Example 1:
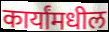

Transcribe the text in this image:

कार्यांमधील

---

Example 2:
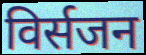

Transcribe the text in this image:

विर्सजन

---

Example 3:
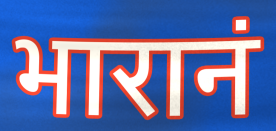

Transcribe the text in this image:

भारानं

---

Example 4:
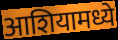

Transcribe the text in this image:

आशियामध्ये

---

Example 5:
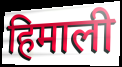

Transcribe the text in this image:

हिमाली